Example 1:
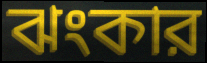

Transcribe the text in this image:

ঝংকার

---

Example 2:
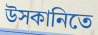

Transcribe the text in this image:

উসকানিতে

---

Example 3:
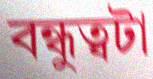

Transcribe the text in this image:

বন্ধুত্বটা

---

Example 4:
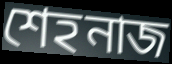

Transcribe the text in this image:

শেহনাজ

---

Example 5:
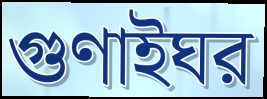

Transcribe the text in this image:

গুণাইঘর